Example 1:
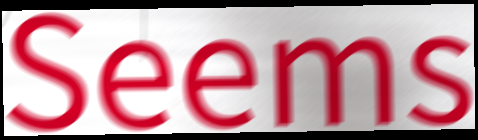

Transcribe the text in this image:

Seems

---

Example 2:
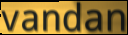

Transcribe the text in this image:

vandan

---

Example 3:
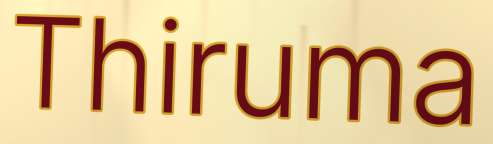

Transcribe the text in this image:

Thiruma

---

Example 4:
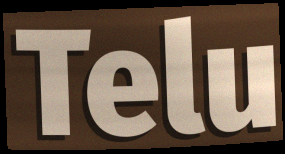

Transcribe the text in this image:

Telu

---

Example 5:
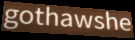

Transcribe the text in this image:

gothawshe